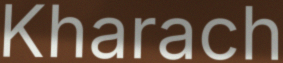
Kharach